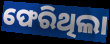
ଫେରିଥିଲା